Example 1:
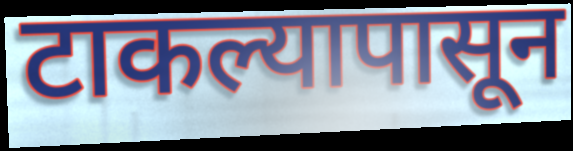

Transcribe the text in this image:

टाकल्यापासून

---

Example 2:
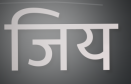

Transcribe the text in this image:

जिय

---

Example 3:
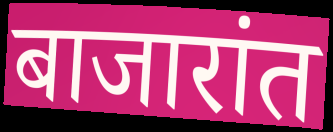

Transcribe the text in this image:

बाजारांत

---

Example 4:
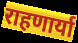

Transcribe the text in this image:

राहणार्या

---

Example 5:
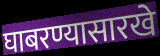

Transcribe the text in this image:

घाबरण्यासारखे